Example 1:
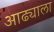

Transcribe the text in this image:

आढ्याला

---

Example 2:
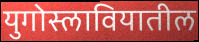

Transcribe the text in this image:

युगोस्लावियातील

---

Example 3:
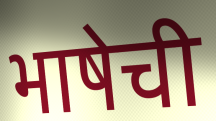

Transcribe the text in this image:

भाषेची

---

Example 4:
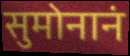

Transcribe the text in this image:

सुमोनानं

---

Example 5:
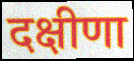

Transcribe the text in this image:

दक्षीणा